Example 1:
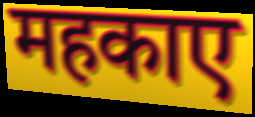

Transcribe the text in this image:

महकाए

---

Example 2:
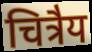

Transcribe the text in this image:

चित्रैय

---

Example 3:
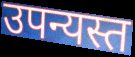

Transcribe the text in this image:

उपन्यस्त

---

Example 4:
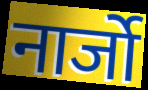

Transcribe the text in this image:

नार्जो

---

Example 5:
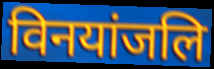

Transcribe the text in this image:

विनयांजलि